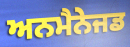
ਅਨਮੈਨੇਜਡ